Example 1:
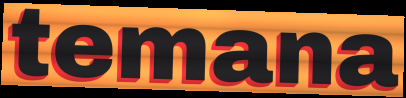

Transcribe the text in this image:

temana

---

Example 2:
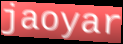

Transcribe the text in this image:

jaoyar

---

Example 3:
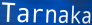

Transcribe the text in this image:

Tarnaka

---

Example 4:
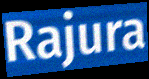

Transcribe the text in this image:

Rajura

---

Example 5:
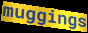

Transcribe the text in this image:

muggings